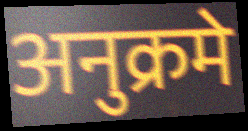
अनुक्रमे